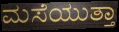
ಮಸೆಯುತ್ತಾ